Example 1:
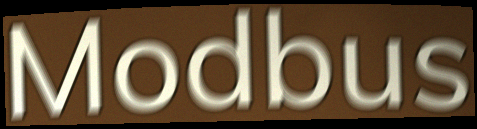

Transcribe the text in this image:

Modbus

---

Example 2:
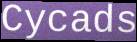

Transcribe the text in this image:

Cycads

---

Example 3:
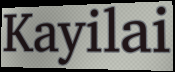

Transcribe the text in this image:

Kayilai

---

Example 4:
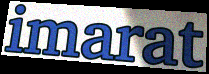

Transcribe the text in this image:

imarat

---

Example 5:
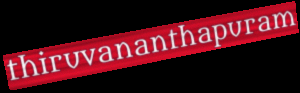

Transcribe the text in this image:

thiruvananthapuram